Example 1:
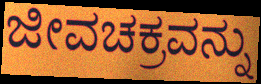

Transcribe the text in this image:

ಜೀವಚಕ್ರವನ್ನು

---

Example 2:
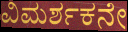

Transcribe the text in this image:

ವಿಮರ್ಶಕನೇ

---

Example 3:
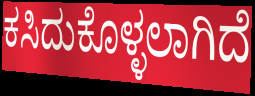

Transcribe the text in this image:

ಕಸಿದುಕೊಳ್ಳಲಾಗಿದೆ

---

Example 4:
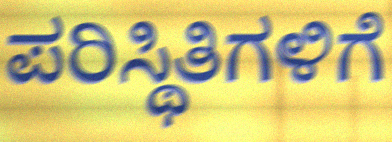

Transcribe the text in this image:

ಪರಿಸ್ಥಿತಿಗಳಿಗೆ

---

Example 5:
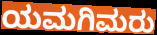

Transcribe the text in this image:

ಯಮಗಿಮರು